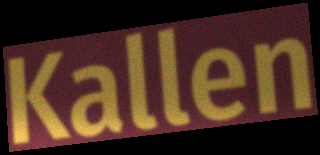
Kallen